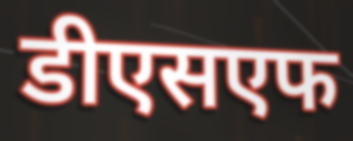
डीएसएफ